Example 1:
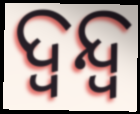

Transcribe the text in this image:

ଦ୍ବନ୍ଦ୍ବ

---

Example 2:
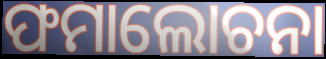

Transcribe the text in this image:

ଫମାଲୋଚନା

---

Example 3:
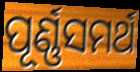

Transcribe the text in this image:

ପୂର୍ଣ୍ଣସମର୍ଥ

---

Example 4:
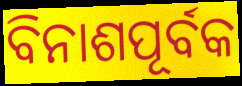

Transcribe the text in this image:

ବିନାଶପୂର୍ବକ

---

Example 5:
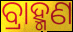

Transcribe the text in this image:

ବ୍ରାହ୍ମଣ